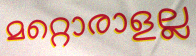
മറ്റൊരാളല്ല